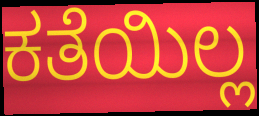
ಕತೆಯಿಲ್ಲ